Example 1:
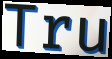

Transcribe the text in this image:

Tru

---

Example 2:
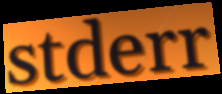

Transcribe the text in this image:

stderr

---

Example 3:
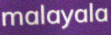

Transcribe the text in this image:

malayala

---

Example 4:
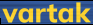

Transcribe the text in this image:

vartak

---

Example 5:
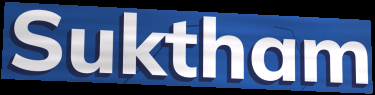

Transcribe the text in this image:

Suktham